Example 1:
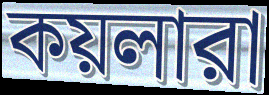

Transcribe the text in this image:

কয়লারা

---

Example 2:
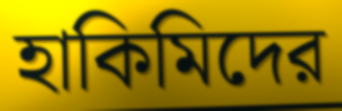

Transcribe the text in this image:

হাকিমিদের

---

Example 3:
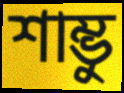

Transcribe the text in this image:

শাম্ভু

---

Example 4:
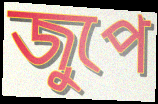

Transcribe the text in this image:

জুপে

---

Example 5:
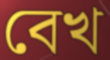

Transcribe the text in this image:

বেখ